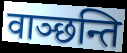
वाञ्छन्ति